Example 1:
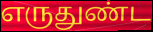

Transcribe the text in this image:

எருதுண்ட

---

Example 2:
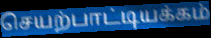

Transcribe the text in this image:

செயற்பாட்டியக்கம்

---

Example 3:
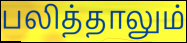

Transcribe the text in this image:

பலித்தாலும்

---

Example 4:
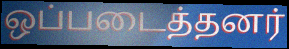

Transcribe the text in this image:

ஒப்படைத்தனர்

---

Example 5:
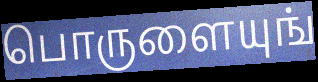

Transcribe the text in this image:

பொருளையுங்